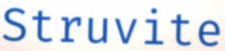
Struvite